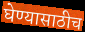
घेण्यासाठीच